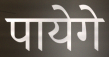
पायेगे